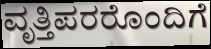
ವೃತ್ತಿಪರರೊಂದಿಗೆ